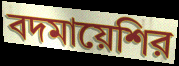
বদমায়েশির